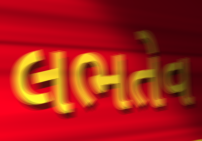
લભતેવ